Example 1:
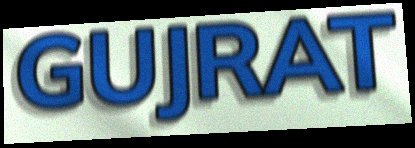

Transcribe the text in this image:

GUJRAT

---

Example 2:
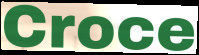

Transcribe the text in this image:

Croce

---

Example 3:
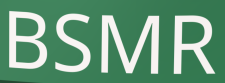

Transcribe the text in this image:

BSMR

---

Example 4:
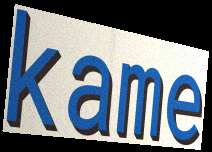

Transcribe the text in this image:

kame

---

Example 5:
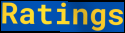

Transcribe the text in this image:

Ratings